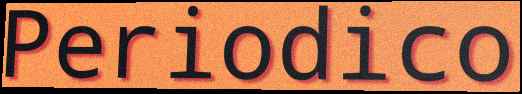
Periodico